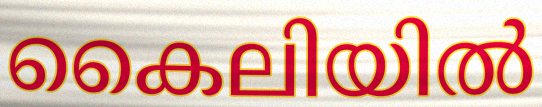
കൈലിയിൽ